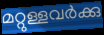
മറ്റുള്ളവർക്കു